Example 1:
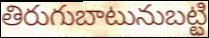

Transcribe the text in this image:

తిరుగుబాటునుబట్టి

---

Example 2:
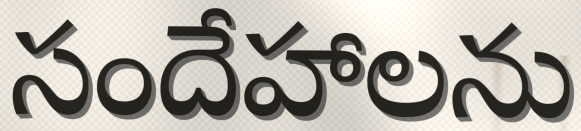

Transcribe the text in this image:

సందేహాలను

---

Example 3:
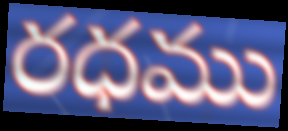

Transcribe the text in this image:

రధము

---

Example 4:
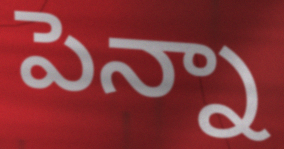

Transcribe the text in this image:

పెన్నా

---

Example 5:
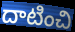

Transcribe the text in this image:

దాటించి